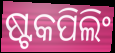
ଷ୍ଟକପିଲିଂ